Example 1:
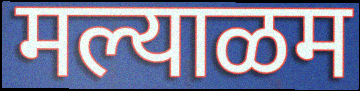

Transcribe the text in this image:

मल्याळम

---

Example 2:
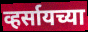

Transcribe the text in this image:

व्हर्सायच्या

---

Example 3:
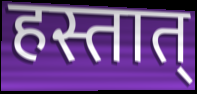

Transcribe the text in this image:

हस्तात्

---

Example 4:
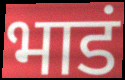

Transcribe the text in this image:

भाडं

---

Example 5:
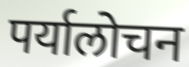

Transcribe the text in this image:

पर्यालोचन